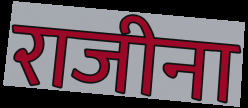
राजीना